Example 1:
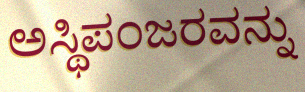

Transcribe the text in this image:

ಅಸ್ಥಿಪಂಜರವನ್ನು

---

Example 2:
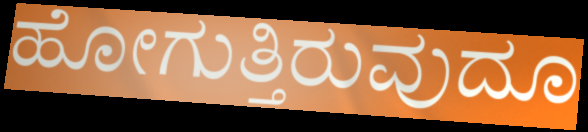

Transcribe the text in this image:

ಹೋಗುತ್ತಿರುವುದೂ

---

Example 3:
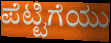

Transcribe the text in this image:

ಪೆಟ್ಟಿಗೆಯು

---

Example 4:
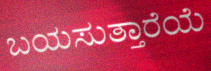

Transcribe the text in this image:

ಬಯಸುತ್ತಾರೆಯೆ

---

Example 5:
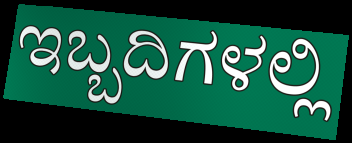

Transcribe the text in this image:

ಇಬ್ಬದಿಗಳಲ್ಲಿ